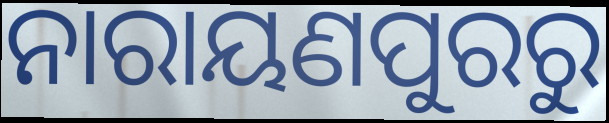
ନାରାୟଣପୁରରୁ